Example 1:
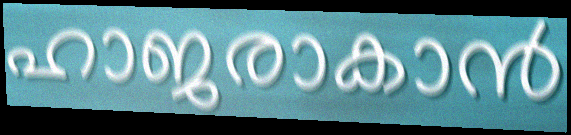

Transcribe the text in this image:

ഹാജരാകാൻ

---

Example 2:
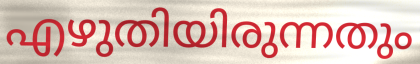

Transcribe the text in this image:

എഴുതിയിരുന്നതും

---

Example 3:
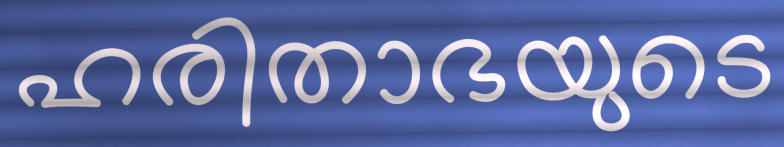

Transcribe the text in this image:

ഹരിതാഭയുടെ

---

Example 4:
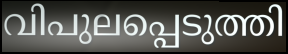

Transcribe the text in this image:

വിപുലപ്പെടുത്തി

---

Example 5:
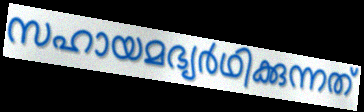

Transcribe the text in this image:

സഹായമഭ്യർഥിക്കുന്നത്